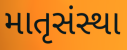
માતૃસંસ્થા